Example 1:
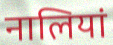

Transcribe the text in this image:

नालियां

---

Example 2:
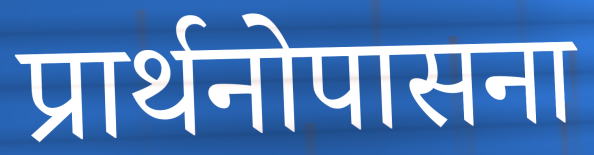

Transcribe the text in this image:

प्रार्थनोपासना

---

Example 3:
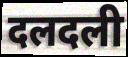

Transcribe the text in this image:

दलदली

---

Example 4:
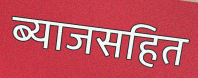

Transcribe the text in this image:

ब्याजसहित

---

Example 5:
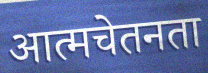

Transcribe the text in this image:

आत्मचेतनता